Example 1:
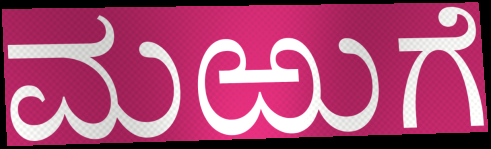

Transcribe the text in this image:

ಮಱುಗೆ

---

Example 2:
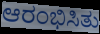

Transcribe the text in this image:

ಆರಂಭಿಸಿತು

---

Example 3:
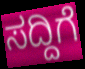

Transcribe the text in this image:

ಸದ್ದಿಗೆ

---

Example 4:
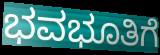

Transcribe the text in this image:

ಭವಭೂತಿಗೆ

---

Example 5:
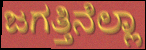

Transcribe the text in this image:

ಜಗತ್ತಿನೆಲ್ಲಾ